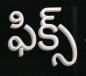
ఫిక్స్